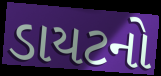
ડાયટનો